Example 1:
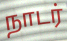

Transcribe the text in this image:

நாடர்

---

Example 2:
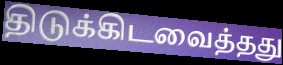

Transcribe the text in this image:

திடுக்கிடவைத்தது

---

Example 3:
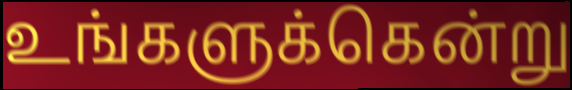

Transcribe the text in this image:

உங்களுக்கென்று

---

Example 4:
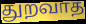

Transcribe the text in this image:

துறவாத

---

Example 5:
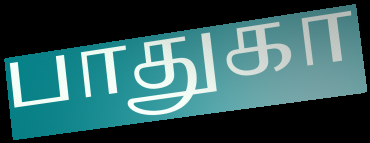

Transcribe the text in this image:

பாதுகா